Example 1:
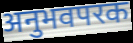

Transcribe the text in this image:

अनुभवपरक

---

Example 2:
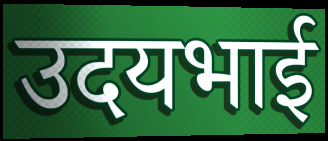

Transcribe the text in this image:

उदयभाई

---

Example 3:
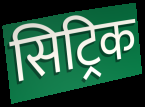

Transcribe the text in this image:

सिट्रिक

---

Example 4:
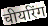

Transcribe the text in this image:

चीयरिंग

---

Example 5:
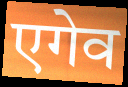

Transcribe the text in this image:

एगेव